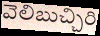
వెలిబుచ్చిరి